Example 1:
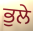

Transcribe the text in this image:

ਭੁਲੇ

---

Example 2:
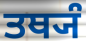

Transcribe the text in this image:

ਤਥ੍ਯੰ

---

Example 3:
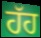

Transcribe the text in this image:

ਹੱਹ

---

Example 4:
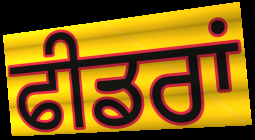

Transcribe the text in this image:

ਫੀਡਰਾਂ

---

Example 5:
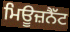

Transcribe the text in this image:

ਮਿਊਜ਼ਨੈੱਟ